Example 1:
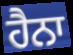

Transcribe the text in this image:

ਹੈਨਾ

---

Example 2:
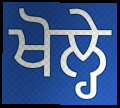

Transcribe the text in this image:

ਖੋਲ੍ਹੇ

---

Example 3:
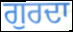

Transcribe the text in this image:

ਗੁਰਦਾ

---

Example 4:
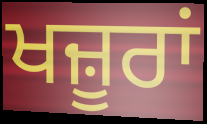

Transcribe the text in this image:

ਖਜ਼ੂਰਾਂ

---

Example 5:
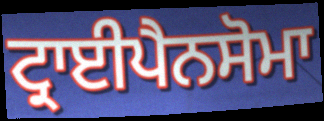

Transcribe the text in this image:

ਟ੍ਰਾਈਪੈਨਸੋਮਾ